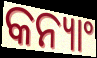
କନ୍ୟାଂ